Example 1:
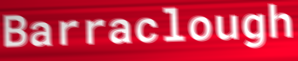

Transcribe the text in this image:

Barraclough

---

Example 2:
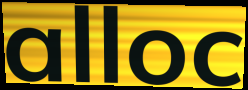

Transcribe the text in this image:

alloc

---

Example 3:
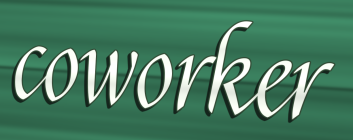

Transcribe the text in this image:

coworker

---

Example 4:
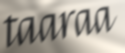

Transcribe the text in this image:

taaraa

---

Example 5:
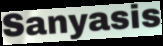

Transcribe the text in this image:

Sanyasis